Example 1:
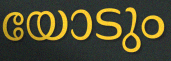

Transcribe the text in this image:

യോടും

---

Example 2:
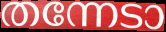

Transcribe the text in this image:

തന്നേടാ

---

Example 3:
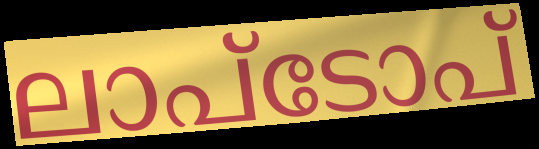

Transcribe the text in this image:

ലാപ്ടോപ്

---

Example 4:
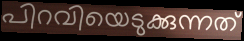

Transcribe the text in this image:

പിറവിയെടുക്കുന്നത്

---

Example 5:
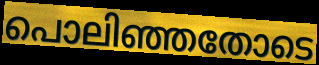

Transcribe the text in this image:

പൊലിഞ്ഞതോടെ